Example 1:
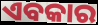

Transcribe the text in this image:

ଏବକାର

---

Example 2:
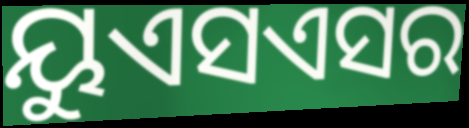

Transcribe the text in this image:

ୟୁଏସଏସର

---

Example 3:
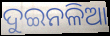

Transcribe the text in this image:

ଦୁଇନଳିଆ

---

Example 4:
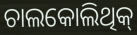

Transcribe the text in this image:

ଚାଲକୋଲିଥିକ୍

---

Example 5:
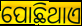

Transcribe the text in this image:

ପୋଛିଥାଏ